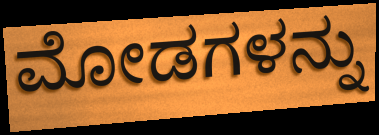
ಮೋಡಗಳನ್ನು